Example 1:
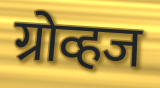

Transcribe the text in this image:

ग्रोव्हज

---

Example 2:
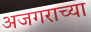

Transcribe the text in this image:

अजगराच्या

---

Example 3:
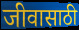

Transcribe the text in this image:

जीवासाठी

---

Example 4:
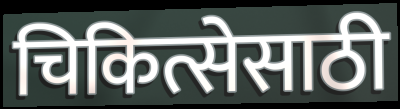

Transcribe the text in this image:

चिकित्सेसाठी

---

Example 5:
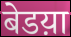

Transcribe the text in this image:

बेडय़ा